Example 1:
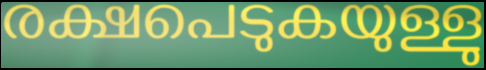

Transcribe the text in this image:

രക്ഷപെടുകയുള്ളു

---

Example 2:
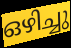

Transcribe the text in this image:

ഒഴിച്ചു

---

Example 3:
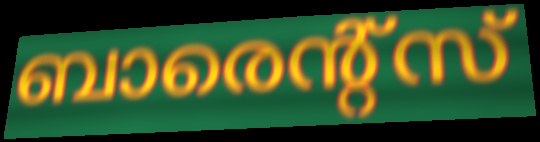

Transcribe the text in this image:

ബാരെന്റ്സ്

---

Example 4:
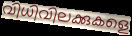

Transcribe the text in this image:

വിധിവിലക്കുകളെ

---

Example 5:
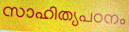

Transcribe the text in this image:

സാഹിത്യപഠനം